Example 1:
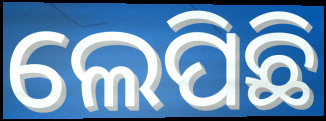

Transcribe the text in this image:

ଲେପିଛି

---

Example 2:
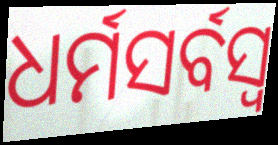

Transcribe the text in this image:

ଧର୍ମସର୍ବସ୍ୱ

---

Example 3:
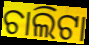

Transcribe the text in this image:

ଚାଲିଟା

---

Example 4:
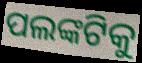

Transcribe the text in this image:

ପଲଙ୍କଟିକୁ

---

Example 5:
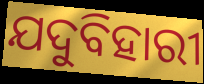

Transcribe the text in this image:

ଯଦୁବିହାରୀ